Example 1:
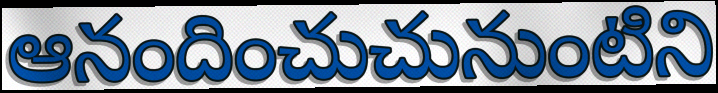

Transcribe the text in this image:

ఆనందించుచునుంటిని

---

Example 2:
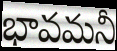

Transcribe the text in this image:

భావమనీ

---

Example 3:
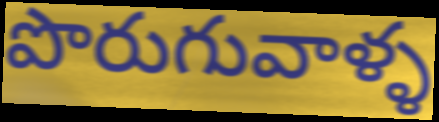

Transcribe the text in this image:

పొరుగువాళ్ళ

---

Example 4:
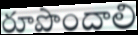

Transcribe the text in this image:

రూపొందాలి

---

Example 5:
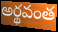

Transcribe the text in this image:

అర్థవంత